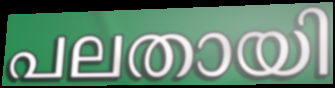
പലതായി